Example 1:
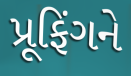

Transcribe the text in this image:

પ્રૂફિંગને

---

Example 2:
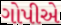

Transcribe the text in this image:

ગોપીએ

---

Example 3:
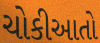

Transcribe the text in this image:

ચોકીઆતો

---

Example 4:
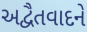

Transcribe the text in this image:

અદ્વૈતવાદને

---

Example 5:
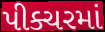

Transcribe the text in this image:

પીક્ચરમાં